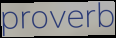
proverb